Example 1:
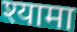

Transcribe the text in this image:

श्‍यामा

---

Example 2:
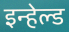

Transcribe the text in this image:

इन्हेल्ड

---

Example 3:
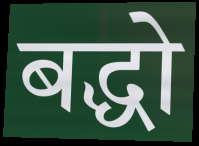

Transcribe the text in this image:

बद्धो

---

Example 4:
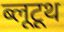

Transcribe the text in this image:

ब्‍लूटूथ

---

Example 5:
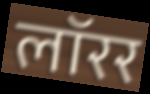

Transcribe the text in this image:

लॉरर